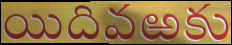
యిదివఱకు